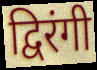
द्विरंगी